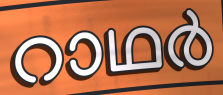
റാഥർ